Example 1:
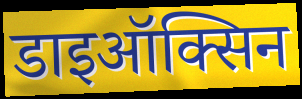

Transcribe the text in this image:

डाइऑक्सिन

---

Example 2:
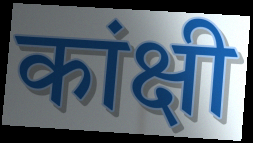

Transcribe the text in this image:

कांक्षी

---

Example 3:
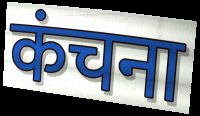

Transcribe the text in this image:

कंचना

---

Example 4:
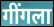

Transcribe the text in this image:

गींगला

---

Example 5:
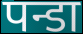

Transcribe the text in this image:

पन्डा